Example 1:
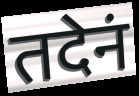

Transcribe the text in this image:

तदेनं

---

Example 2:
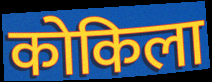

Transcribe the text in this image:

कोकिला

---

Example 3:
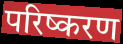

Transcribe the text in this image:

परिष्करण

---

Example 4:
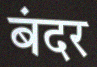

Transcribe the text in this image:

बंदर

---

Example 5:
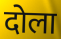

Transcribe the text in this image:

दोला